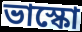
ভাস্কো